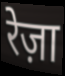
रेज़ा